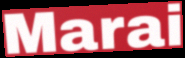
Marai